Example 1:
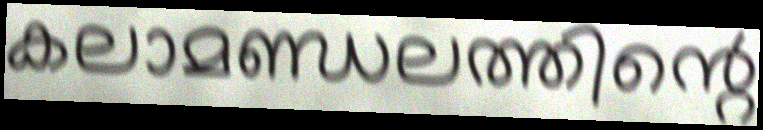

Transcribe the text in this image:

കലാമണ്ഡലത്തിന്റെ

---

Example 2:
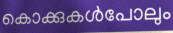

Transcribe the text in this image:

കൊക്കുകൾപോലും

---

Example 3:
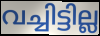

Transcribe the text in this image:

വച്ചിട്ടില്ല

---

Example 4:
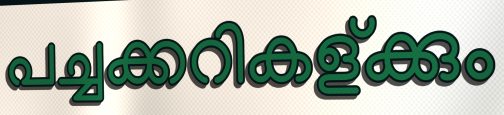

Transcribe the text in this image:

പച്ചക്കറികള്ക്കും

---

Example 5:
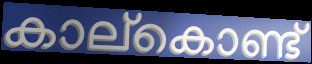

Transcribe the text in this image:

കാല്കൊണ്ട്